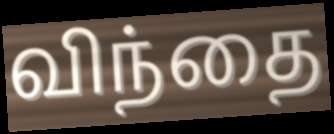
விந்தை